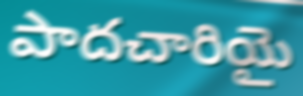
పాదచారియై